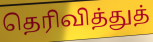
தெரிவித்துத்